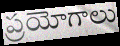
ప్రయోగాలు